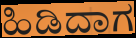
ಹಿಡಿದಾಗ